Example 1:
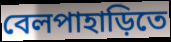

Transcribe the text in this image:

বেলপাহাড়িতে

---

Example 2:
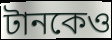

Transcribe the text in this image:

টানকেও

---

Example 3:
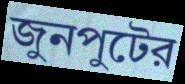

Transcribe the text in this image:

জুনপুটের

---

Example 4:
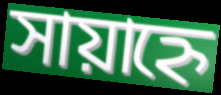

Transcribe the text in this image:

সায়াহ্নে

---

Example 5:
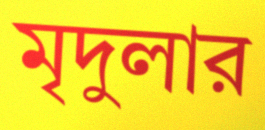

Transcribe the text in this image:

মৃদুলার